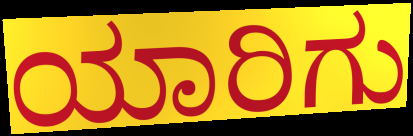
ಯಾರಿಗು